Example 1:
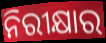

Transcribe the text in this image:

ନିରୀକ୍ଷାର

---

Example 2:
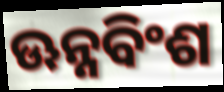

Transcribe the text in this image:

ଊନ୍ନବିଂଶ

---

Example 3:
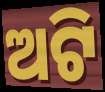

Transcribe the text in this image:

ଅଟି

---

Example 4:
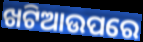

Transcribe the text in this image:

ଖଟିଆଉପରେ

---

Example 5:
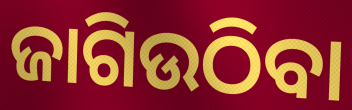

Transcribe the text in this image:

ଜାଗିଉଠିବା